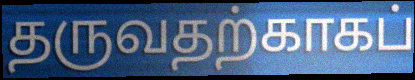
தருவதற்காகப்